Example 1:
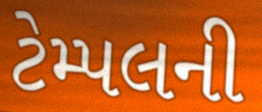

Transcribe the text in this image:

ટેમ્પલની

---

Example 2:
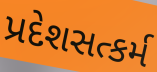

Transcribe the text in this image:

પ્રદેશસત્કર્મ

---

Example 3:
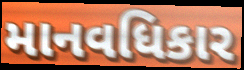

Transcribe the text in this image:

માનવધિકાર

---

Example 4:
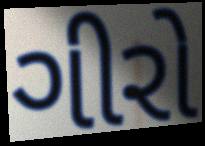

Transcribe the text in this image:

ગીરો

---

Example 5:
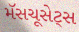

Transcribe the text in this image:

મૅસચૂસેટ્સ